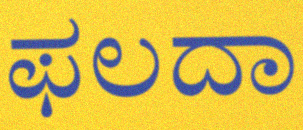
ಫಲದಾ